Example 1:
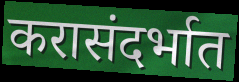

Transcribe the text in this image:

करासंदर्भात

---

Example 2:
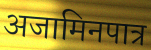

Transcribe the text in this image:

अजामिनपात्र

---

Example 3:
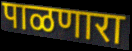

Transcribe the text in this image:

पाळणारा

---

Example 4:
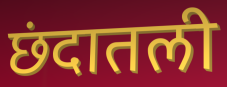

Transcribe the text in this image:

छंदातली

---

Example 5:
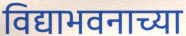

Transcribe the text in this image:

विद्याभवनाच्या